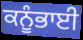
ਕਨੂੰਭਾਈ